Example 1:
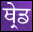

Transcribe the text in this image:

ਥ੍ਰੇਡ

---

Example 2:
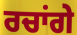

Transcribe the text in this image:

ਰਚਾਂਗੇ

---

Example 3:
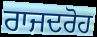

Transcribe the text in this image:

ਰਾਜਦਰੋਹ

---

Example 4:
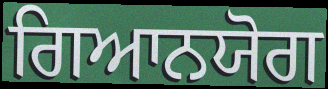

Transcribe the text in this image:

ਗਿਆਨਯੋਗ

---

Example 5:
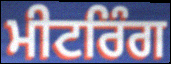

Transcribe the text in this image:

ਮੀਟਰਿੰਗ